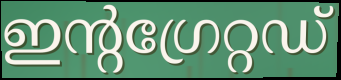
ഇന്റഗ്രേറ്റഡ്